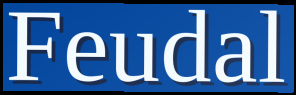
Feudal